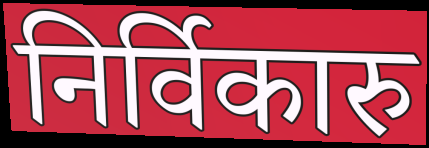
निर्विकारु